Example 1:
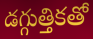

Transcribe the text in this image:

డగ్గుత్తికతో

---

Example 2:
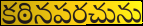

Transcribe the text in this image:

కఠినపరచును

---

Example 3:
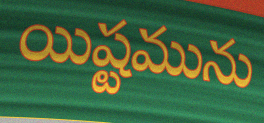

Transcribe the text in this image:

యిష్టమును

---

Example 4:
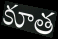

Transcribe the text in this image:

కూత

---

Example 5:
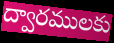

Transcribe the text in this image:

ద్వారములకు